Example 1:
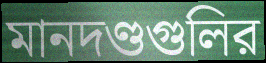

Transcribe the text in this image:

মানদণ্ডগুলির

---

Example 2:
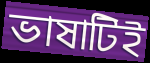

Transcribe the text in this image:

ভাষাটিই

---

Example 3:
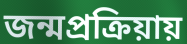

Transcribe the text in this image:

জন্মপ্রক্রিয়ায়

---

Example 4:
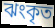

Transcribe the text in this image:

ঝংকৃত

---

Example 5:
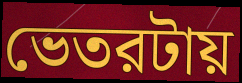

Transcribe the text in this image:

ভেতরটায়